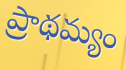
ప్రాథమ్యం